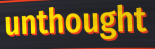
unthought